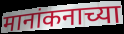
मानांकनाच्या